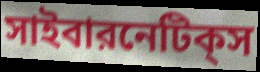
সাইবারনেটিক্‌স